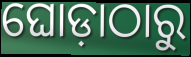
ଘୋଡ଼ାଠାରୁ